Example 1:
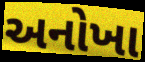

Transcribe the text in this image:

અનોખા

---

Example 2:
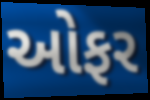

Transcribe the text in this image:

ઓફર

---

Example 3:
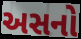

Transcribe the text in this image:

અસનો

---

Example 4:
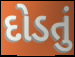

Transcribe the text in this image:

દોડતું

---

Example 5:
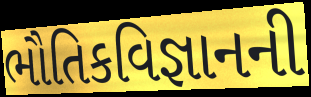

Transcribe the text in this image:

ભૌતિકવિજ્ઞાનની